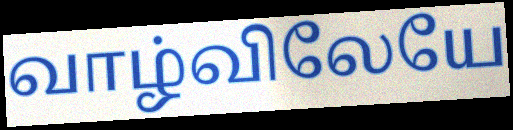
வாழ்விலேயே